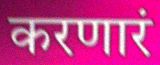
करणारं